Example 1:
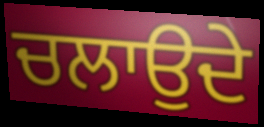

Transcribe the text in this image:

ਚਲਾਉਦੇ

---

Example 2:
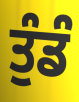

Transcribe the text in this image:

ਤੁੰਡੰ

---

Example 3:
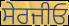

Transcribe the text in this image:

ਸੇਰਜੀਓ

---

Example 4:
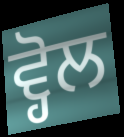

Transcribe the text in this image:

ਵ੍ਹੋਲ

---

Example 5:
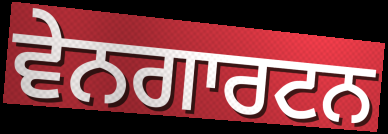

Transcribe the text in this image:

ਵੇਨਗਾਰਟਨ